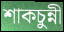
শাকচুন্নী